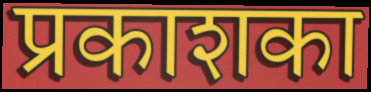
प्रकाशका